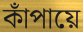
কাঁপায়ে